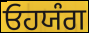
ਓਹਯੰਗ